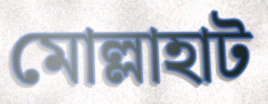
মোল্লাহাট